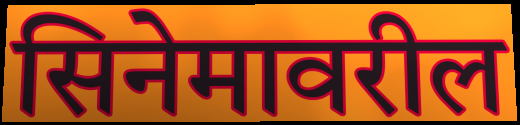
सिनेमावरील